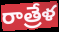
రాత్రేళ